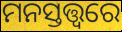
ମନସ୍ତତ୍ତ୍ଵରେ